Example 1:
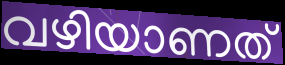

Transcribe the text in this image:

വഴിയാണത്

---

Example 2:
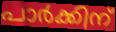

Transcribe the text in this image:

പാർക്കിന്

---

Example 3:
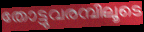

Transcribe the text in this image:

തോട്ടുവരമ്പിലൂടെ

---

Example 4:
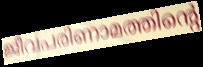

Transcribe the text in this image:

ജീവപരിണാമത്തിന്റെ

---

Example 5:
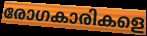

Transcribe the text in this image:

രോഗകാരികളെ